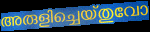
അരുളിച്ചെയ്തുവോ